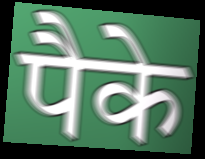
पैके